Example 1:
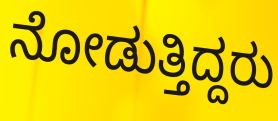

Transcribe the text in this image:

ನೋಡುತ್ತಿದ್ದರು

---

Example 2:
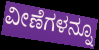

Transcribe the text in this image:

ವೀಣೆಗಳನ್ನೂ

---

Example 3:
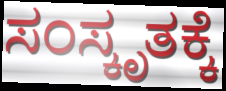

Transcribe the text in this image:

ಸಂಸ್ಕೃತಕ್ಕೆ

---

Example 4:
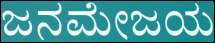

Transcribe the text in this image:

ಜನಮೇಜಯ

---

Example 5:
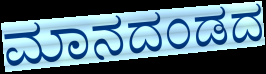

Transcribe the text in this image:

ಮಾನದಂಡದ